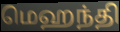
மெஹந்தி